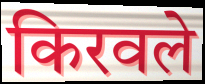
किरवले